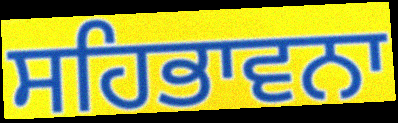
ਸਹਿਭਾਵਨਾ